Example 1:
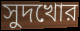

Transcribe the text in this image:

সুদখোর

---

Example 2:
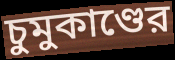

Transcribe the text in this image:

চুমুকাণ্ডের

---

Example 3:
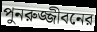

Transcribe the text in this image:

পুনরুজ্জীবনের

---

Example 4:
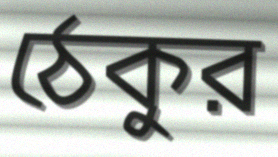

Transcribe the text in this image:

ঠেকুর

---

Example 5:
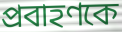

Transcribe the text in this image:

প্রবাহণকে